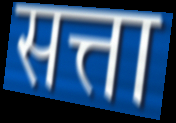
सत्ता